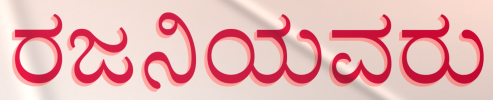
ರಜನಿಯವರು